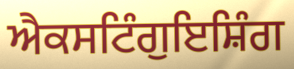
ਐਕਸਟਿੰਗੁਇਸ਼ਿੰਗ